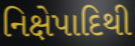
નિક્ષેપાદિથી